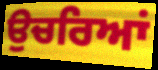
ਉਚਰਿਆਂ